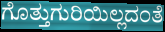
ಗೊತ್ತುಗುರಿಯಿಲ್ಲದಂತೆ